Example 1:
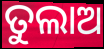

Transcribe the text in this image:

ତୁଲାଅ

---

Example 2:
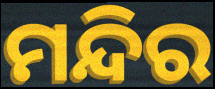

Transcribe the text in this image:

ମନ୍ଦିର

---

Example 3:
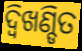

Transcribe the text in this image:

ଦ୍ଵିଖଣ୍ଡିତ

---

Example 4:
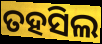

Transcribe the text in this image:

ତହସିଲ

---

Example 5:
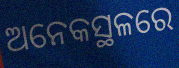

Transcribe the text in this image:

ଅନେକସ୍ଥଳରେ